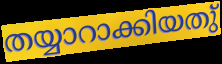
തയ്യാറാക്കിയതു്